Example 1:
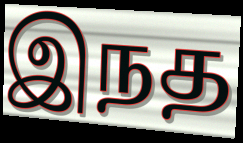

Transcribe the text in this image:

இநத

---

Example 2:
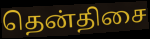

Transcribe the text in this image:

தென்திசை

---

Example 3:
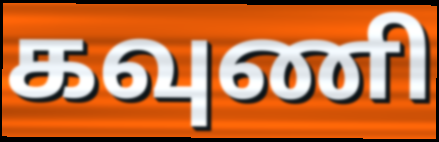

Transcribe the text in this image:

கவுணி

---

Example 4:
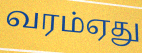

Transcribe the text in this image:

வரம்ஏது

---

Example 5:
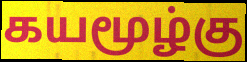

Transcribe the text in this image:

கயமூழ்கு